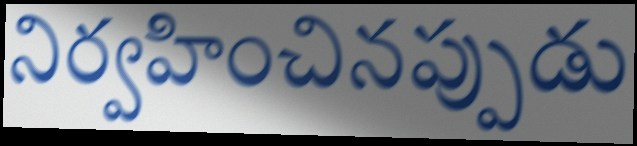
నిర్వహించినప్పుడు